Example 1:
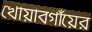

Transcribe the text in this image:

খোয়াবগাঁয়ের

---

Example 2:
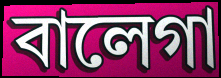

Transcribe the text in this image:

বালেগা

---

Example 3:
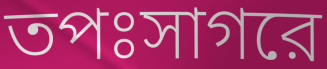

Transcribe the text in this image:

তপঃসাগরে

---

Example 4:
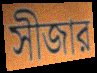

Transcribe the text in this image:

সীজার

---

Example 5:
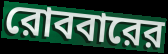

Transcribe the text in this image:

রোববারের